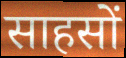
साहसों